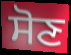
ਸੋਣ